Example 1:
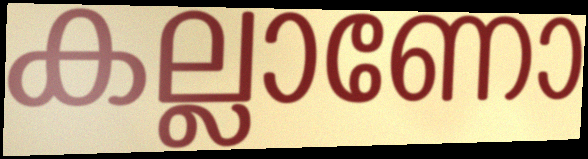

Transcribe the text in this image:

കല്ലാണോ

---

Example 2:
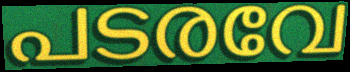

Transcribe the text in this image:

പടരവേ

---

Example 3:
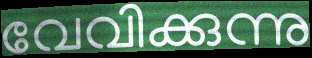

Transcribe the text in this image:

വേവിക്കുന്നു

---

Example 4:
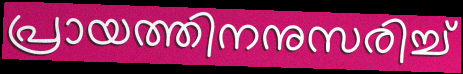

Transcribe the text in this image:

പ്രായത്തിനനുസരിച്ച്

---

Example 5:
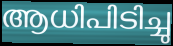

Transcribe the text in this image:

ആധിപിടിച്ചു